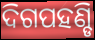
ଦିଗପହଣ୍ଡି